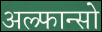
अल्फान्सो